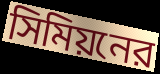
সিমিয়নের